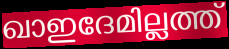
ഖാഇദേമില്ലത്ത്